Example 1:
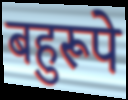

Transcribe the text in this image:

बहुरूपे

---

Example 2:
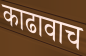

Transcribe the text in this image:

काढावाच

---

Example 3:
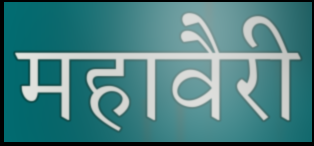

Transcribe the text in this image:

महावैरी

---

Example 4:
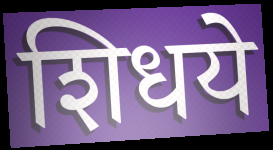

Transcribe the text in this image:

शिधये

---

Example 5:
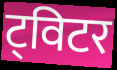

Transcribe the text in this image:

ट्‌विटर